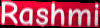
Rashmi